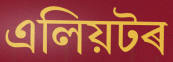
এলিয়টৰ